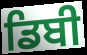
ਡਿਬੀ